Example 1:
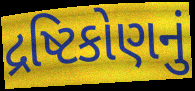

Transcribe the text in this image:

દ્રષ્ટિકોણનું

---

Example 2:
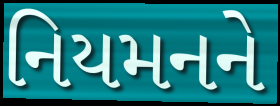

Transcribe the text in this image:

નિયમનને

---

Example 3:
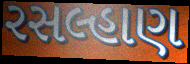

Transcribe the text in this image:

રસલ્હાણ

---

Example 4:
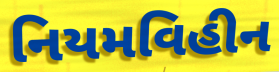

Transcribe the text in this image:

નિયમવિહીન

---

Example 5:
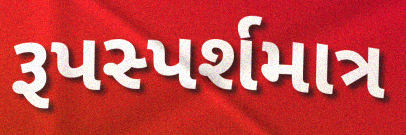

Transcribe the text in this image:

રૂપસ્પર્શમાત્ર